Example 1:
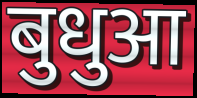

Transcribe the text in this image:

बुधुआ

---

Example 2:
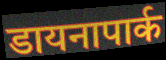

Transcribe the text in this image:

डायनापार्क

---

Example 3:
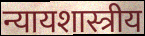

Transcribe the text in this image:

न्यायशास्त्रीय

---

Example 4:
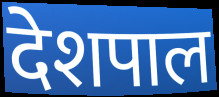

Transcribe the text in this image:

देशपाल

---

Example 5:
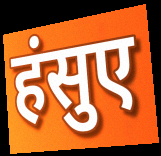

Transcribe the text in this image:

हंसुए